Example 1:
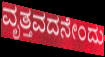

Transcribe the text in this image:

ವೃತ್ತವದನೇಂದು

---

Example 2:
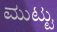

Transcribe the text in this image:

ಮುಟ್ಟು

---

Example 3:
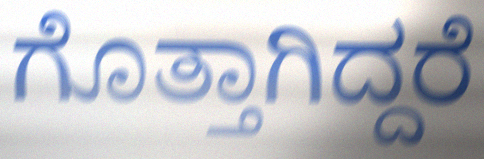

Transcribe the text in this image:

ಗೊತ್ತಾಗಿದ್ದರೆ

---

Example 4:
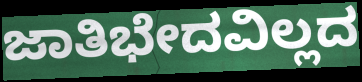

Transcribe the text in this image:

ಜಾತಿಭೇದವಿಲ್ಲದ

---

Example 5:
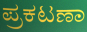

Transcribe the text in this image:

ಪ್ರಕಟಣಾ